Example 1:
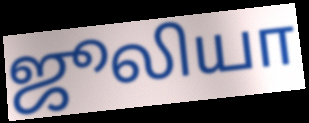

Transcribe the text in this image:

ஜூலியா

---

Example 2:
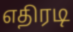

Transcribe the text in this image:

எதிரடி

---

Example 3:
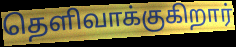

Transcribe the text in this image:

தெளிவாக்குகிறார்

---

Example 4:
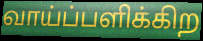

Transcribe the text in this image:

வாய்ப்பளிக்கிற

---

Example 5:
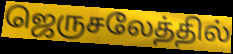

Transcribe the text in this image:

ஜெருசலேத்தில்